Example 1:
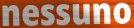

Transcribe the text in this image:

nessuno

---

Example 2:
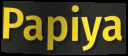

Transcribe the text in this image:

Papiya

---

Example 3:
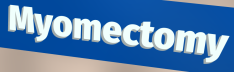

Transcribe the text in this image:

Myomectomy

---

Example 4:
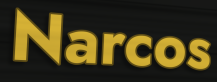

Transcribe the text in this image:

Narcos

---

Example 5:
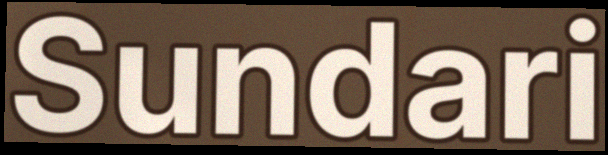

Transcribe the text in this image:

Sundari